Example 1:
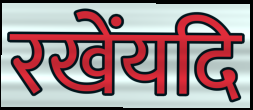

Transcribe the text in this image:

रखेंयदि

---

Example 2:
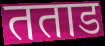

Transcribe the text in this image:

तताड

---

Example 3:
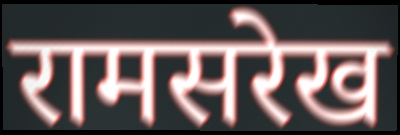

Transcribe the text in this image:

रामसरेख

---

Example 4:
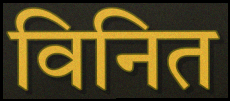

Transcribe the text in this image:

विनित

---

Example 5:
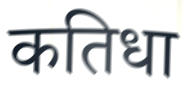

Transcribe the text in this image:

कतिधा